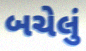
બચેલું